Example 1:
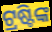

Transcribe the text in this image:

ଟ୍ରଷ୍ଟିଙ୍କ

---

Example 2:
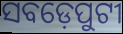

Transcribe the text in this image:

ସବଡ଼େପୁଟୀ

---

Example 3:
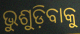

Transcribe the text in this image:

ଭୁଶୁଡ଼ିବାକୁ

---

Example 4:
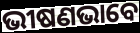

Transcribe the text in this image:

ଭୀଷଣଭାବେ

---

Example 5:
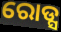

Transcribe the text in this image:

ରୋଡ୍ସ